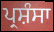
ਪ੍ਰਸ਼ੰਸਾ